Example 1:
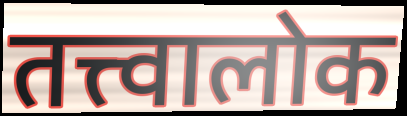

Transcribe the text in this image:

तत्त्वालोक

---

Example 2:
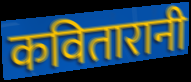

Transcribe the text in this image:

कवितारानी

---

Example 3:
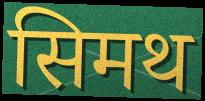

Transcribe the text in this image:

सिमथ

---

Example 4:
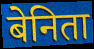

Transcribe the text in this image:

बेनिता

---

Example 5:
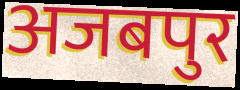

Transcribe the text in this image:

अजबपुर